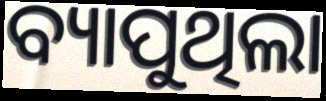
ବ୍ୟାପୁଥିଲା